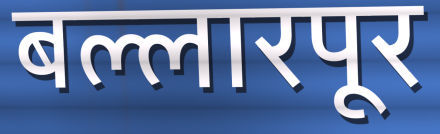
बल्लारपूर